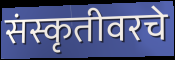
संस्कृतीवरचे